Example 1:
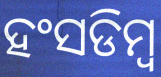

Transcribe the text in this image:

ହଂସଡିମ୍ବ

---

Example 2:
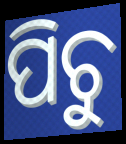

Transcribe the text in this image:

ପିଚୁ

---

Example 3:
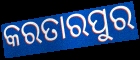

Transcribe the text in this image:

କରତାରପୁର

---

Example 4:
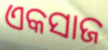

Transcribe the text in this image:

ଏକସାଜ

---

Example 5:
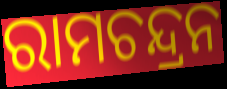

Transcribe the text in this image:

ରାମଚନ୍ଦ୍ରନ